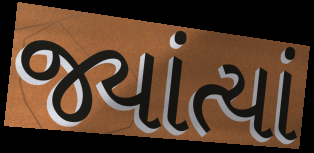
જ્યાંત્યાં